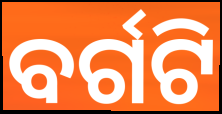
ବର୍ଗଟି